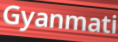
Gyanmati